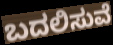
ಬದಲಿಸುವೆ